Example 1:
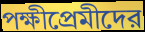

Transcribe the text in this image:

পক্ষীপ্রেমীদের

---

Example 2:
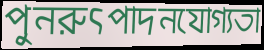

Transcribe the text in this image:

পুনরুৎপাদনযোগ্যতা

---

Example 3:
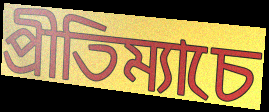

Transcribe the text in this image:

প্রীতিম্যাচে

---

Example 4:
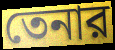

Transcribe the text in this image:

তেনার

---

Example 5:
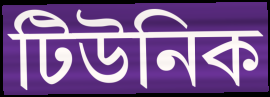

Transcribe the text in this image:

টিউনিক